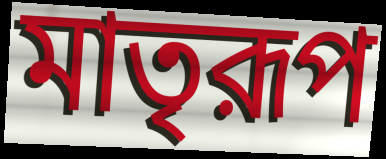
মাতৃরূপ